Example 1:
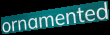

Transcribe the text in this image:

ornamented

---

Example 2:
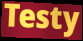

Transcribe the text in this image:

Testy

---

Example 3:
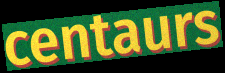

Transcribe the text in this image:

centaurs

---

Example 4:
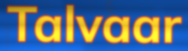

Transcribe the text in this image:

Talvaar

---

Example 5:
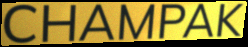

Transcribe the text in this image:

CHAMPAK